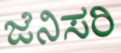
ಜೆನಿಸರಿ